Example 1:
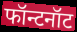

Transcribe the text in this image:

फॉन्टनॉट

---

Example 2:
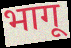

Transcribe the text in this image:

भागू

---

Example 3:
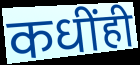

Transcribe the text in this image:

कधींही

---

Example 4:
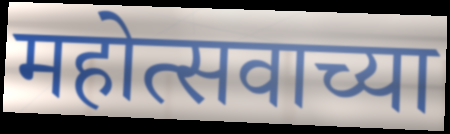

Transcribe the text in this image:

महोत्सवाच्या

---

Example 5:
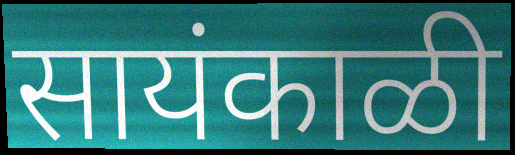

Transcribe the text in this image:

सायंकाळी